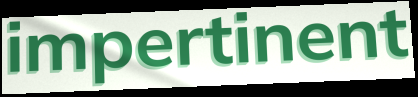
impertinent